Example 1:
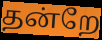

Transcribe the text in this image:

தன்றே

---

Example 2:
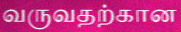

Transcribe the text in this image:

வருவதற்கான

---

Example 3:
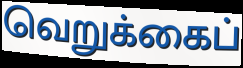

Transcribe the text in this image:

வெறுக்கைப்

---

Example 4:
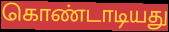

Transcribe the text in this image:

கொண்டாடியது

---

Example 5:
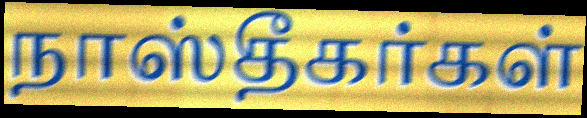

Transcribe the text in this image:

நாஸ்தீகர்கள்